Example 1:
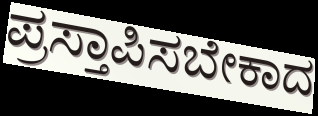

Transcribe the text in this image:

ಪ್ರಸ್ತಾಪಿಸಬೇಕಾದ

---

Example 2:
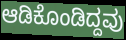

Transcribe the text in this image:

ಆಡಿಕೊಂಡಿದ್ದವು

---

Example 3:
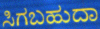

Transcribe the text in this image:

ಸಿಗಬಹುದಾ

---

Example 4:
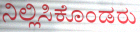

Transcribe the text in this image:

ನಿಲ್ಲಿಸಿಕೊಂಡರು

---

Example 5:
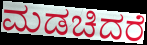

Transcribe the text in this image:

ಮಡಚಿದರೆ